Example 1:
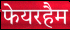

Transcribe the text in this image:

फेयरहैम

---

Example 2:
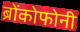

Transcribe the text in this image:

ब्रोंकोफोनी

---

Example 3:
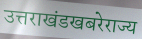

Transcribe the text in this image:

उत्तराखंडखबरेराज्य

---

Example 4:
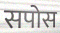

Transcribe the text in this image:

सपोस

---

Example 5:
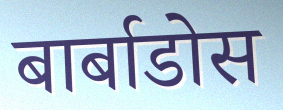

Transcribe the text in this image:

बार्बाडोस